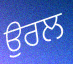
ਉਰਲ